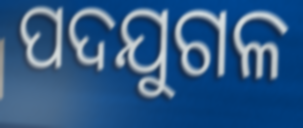
ପଦଯୁଗଳ